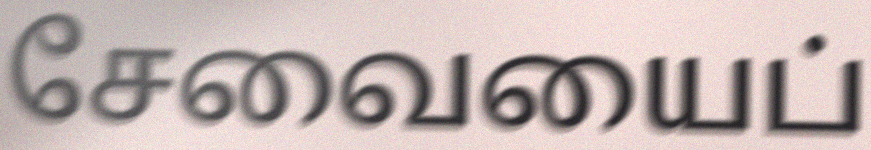
சேவையைப்